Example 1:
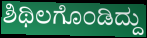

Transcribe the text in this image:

ಶಿಥಿಲಗೊಂಡಿದ್ದು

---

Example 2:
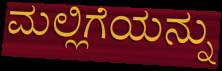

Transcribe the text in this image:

ಮಲ್ಲಿಗೆಯನ್ನು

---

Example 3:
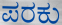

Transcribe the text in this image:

ಪರಕು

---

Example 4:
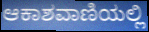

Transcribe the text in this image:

ಆಕಾಶವಾಣಿಯಲ್ಲಿ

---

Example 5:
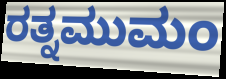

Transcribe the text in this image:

ರತ್ನಮುಮಂ